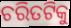
ଚରିତଟିକୁ